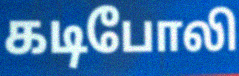
கடிபோலி